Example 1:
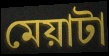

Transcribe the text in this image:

মেয়াটা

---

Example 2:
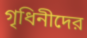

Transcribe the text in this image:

গৃধিনীদের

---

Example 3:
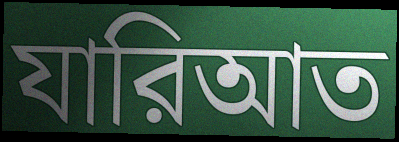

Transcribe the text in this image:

যারিআত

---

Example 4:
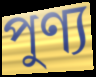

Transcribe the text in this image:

পুণ্য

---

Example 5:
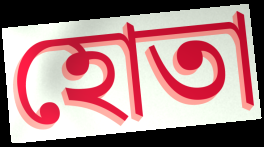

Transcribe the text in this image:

হোতা